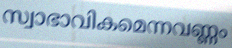
സ്വാഭാവികമെന്നവണ്ണം